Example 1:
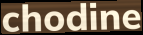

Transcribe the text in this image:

chodine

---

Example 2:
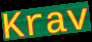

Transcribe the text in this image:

Krav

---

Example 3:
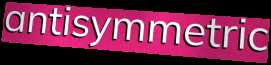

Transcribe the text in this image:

antisymmetric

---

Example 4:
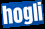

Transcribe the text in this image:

hogli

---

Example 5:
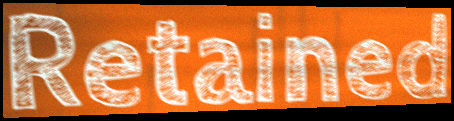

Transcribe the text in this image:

Retained